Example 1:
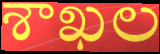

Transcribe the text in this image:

శాఖల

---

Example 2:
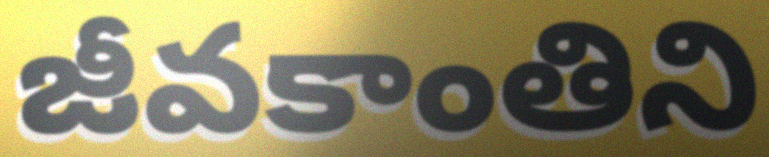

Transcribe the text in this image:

జీవకాంతిని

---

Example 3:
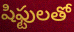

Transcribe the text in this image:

షిఫ్టులతో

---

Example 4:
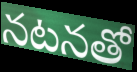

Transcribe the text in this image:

నటనతో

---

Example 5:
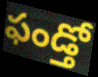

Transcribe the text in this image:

ఫండ్తో